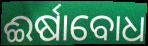
ଈର୍ଷାବୋଧ